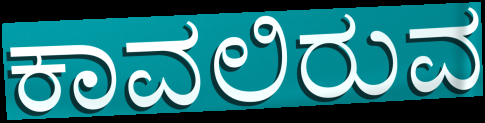
ಕಾವಲಿರುವ